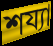
শয্যা